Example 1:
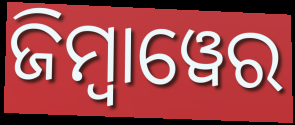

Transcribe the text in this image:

ଜିମ୍ୱାୱେର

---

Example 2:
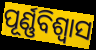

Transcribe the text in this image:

ପୂର୍ଣ୍ଣବିଶ୍ଵାସ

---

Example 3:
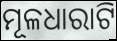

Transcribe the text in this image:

ମୂଳଧାରାଟି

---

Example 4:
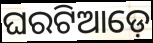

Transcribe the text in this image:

ଘରଟିଆଡ଼େ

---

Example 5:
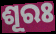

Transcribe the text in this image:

ଶୂରଃ